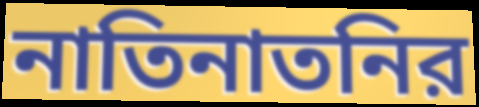
নাতিনাতনির